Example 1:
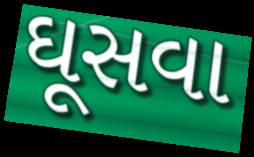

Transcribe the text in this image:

ઘૂસવા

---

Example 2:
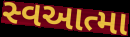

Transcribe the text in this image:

સ્વઆત્મા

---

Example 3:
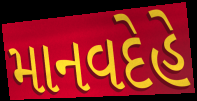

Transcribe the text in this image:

માનવદેહે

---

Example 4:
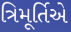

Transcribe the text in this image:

ત્રિમૂર્તિએ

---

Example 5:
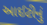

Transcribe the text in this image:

આઈટીનું